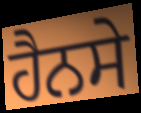
ਹੈਨਸੇ